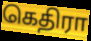
கெதிரா